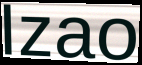
Izao